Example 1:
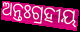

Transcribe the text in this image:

ଅନ୍ତଃଗ୍ରହୀୟ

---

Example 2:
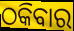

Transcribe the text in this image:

ଠକିବାର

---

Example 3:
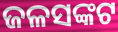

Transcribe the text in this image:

ଜଳସଙ୍କଟ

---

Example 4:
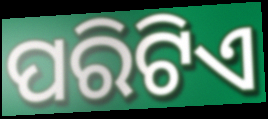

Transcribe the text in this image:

ପରିଟିଏ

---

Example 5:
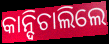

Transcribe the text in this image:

କାନ୍ଦିଚାଲିଲେ